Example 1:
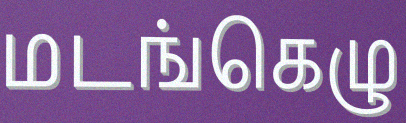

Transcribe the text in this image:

மடங்கெழு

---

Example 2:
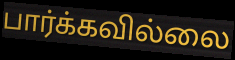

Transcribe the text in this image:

பார்க்கவில்லை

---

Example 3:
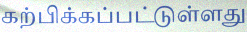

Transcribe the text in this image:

கற்பிக்கப்பட்டுள்ளது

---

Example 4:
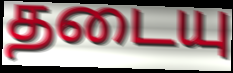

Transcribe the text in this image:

தடையு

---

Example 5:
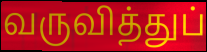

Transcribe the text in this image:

வருவித்துப்